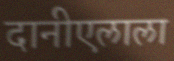
दानीएलाला